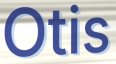
Otis